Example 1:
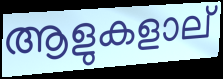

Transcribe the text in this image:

ആളുകളാല്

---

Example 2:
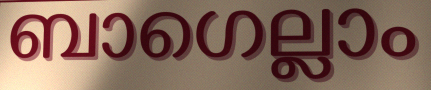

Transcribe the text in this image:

ബാഗെല്ലാം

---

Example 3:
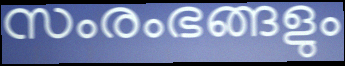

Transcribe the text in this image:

സംരംഭങ്ങളും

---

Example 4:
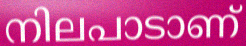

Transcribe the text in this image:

നിലപാടാണ്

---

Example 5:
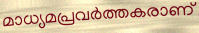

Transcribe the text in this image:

മാധ്യമപ്രവർത്തകരാണ്